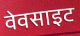
वेवसाइट